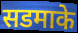
सडमाके